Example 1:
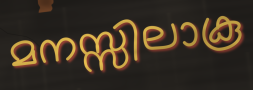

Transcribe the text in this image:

മനസ്സിലാകൂ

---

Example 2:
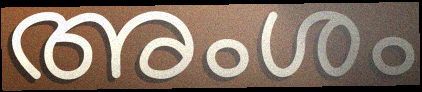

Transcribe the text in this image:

അംശം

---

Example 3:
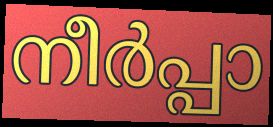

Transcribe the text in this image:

നീർപ്പാ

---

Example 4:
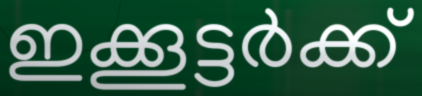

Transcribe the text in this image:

ഇക്കൂട്ടർക്ക്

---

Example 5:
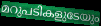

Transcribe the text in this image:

മറുപടികളുടേയും